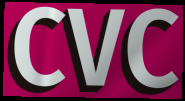
CVC